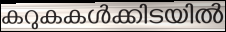
കറുകകൾക്കിടയിൽ